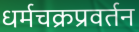
धर्मचक्रप्रवर्तन